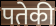
पतेकी